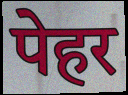
पेहर